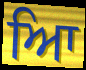
ਆਿ